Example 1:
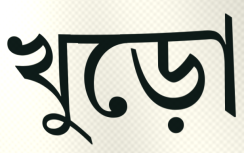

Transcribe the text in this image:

খুড়ো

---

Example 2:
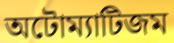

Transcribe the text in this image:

অটোম্যাটিজম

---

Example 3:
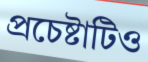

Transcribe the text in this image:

প্রচেষ্টাটিও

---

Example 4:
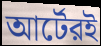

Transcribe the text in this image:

আর্টেরই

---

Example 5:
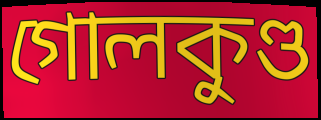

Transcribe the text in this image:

গোলকুণ্ড